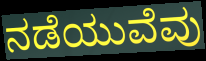
ನಡೆಯುವೆವು